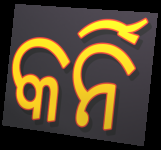
କର୍ନି